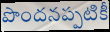
పొందనప్పటికీ